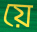
য়ে